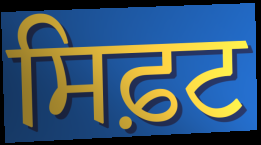
ਸਿਫ਼ਟ